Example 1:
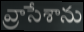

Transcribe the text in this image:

వ్రాసేశాను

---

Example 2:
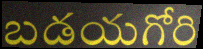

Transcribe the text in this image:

బడయగోరి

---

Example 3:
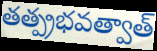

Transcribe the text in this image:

తత్ప్రభవత్వాత్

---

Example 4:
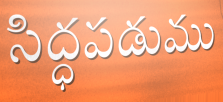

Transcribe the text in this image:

సిద్ధపడుము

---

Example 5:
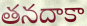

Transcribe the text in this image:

తనదాకా